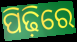
ପିଢ଼ିରେ